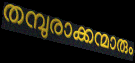
തമ്പുരാക്കന്മാരും